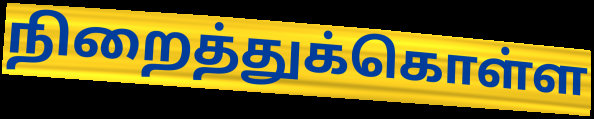
நிறைத்துக்கொள்ள